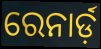
ରେନାର୍ଡ଼